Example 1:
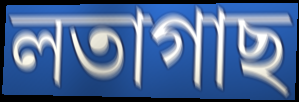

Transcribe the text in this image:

লতাগাছ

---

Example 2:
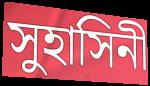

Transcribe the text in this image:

সুহাসিনী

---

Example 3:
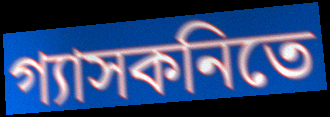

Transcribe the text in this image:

গ্যাসকনিতে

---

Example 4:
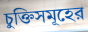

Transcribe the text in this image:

চুক্তিসমূহের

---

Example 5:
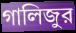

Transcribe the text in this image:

গালিজুর